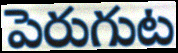
పెరుగుట